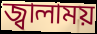
জ্বালাময়